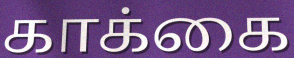
காக்கை